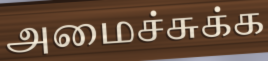
அமைச்சுக்க